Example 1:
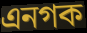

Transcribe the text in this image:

এনগক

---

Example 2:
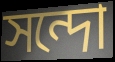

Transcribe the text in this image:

সন্দো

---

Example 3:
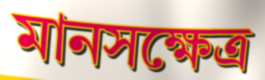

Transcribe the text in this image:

মানসক্ষেত্র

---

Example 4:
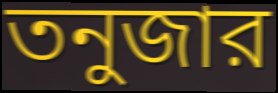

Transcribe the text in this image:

তনুজার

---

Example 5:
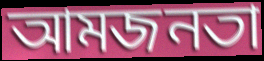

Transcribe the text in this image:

আমজনতা